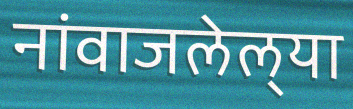
नांवाजलेल्या